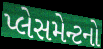
પ્લેસમેન્ટનો